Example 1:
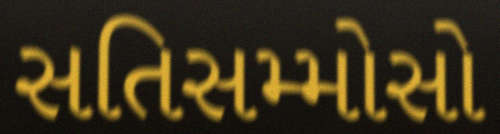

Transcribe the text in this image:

સતિસમ્મોસો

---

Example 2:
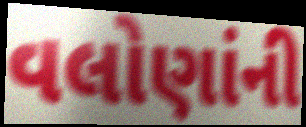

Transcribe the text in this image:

વલોણાંની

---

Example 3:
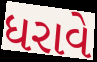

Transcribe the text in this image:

ધરાવે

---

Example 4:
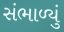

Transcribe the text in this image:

સંભાળ્યું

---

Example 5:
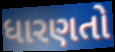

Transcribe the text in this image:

ધારણતો